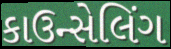
કાઉન્સેલિંગ